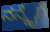
ನನ್ಕೈಗೆ